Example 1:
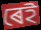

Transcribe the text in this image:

ৰেই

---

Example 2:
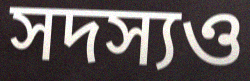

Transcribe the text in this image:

সদস্যও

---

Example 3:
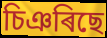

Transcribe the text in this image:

চিঞৰিছে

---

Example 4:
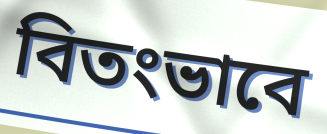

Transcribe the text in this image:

বিতংভাবে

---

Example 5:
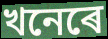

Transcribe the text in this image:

খনেৰে